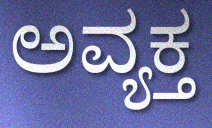
ಅವ್ಯಕ್ತ